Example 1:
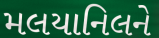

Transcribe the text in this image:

મલયાનિલને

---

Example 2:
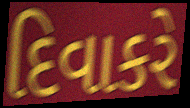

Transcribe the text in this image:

દિવાકરે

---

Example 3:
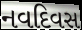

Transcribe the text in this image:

નવદિવસ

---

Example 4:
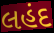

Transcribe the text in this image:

લહંદ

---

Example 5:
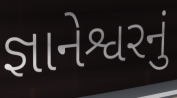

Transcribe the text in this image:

જ્ઞાનેશ્વરનું